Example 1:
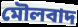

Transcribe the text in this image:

মৌলবাদ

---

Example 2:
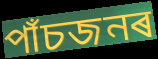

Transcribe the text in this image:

পাঁচজনৰ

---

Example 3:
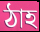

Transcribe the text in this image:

ঠাহ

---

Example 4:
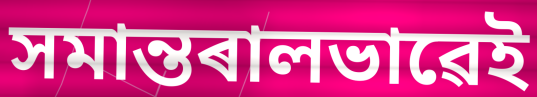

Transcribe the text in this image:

সমান্তৰালভাৱেই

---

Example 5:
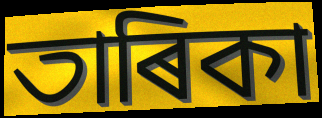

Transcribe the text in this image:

তাৰিকা